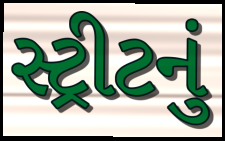
સ્ટ્રીટનું